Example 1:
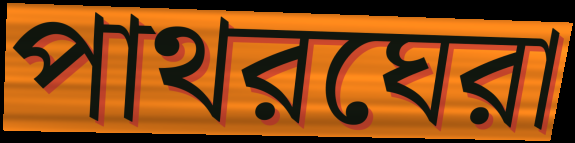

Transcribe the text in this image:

পাথরঘেরা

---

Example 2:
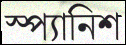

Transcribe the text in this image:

স্প্যানিশ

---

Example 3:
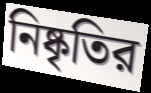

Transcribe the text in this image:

নিষ্কৃতির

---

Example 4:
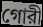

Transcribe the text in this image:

গোরী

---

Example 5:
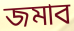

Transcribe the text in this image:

জমাব